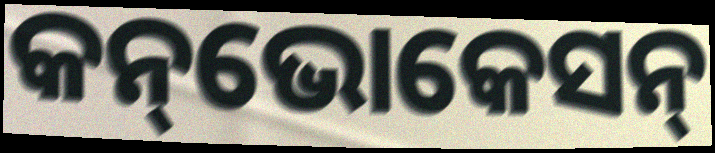
କନ୍‌ଭୋକେସନ୍